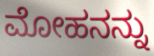
ಮೋಹನನ್ನು